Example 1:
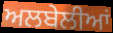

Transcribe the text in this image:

ਅਲਬੇਲੀਆਂ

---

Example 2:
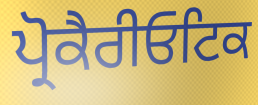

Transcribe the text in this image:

ਪ੍ਰੋਕੈਰੀਓਟਿਕ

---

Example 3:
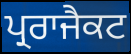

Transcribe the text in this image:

ਪ੍ਰਰਾਜੈਕਟ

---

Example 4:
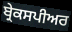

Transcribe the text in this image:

ਬ੍ਰੇਕਸਪੀਅਰ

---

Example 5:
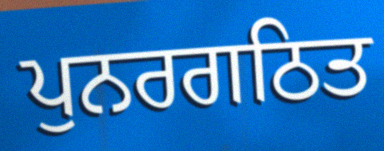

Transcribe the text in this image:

ਪੁਨਰਗਠਿਤ